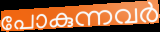
പോകുന്നവർ